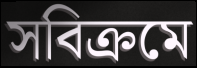
সবিক্রমে